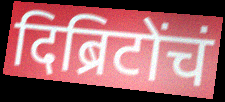
दिब्रिटोंचं